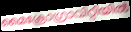
മൈക്രോഗ്രാവിറ്റിയിൽ